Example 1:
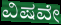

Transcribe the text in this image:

ವಿಷವೇ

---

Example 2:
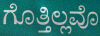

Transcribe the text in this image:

ಗೊತ್ತಿಲ್ಲವೊ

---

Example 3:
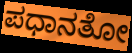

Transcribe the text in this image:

ಪಧಾನತೋ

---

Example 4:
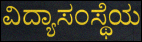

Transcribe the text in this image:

ವಿದ್ಯಾಸಂಸ್ಥೆಯ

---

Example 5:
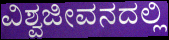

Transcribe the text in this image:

ವಿಶ್ವಜೀವನದಲ್ಲಿ